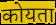
कोयता